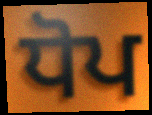
ਧੋਪ